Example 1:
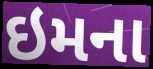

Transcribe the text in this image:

ઇમના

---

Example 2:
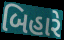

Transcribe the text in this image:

બિહારે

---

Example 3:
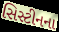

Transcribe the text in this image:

સિસ્ટીનના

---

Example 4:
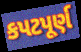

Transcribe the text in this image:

કપટપૂર્ણ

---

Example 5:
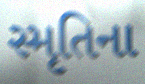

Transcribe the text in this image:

સ્મૃતિના